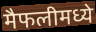
मैफलीमध्ये